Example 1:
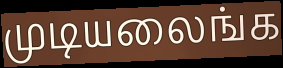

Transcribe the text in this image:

முடியலைங்க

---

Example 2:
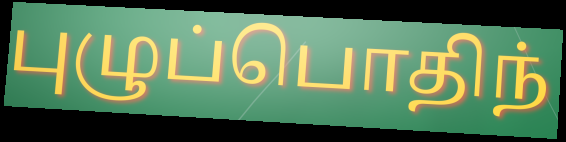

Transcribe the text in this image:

புழுப்பொதிந்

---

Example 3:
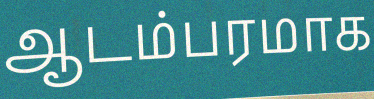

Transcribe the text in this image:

ஆடம்பரமாக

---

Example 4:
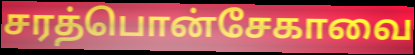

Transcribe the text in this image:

சரத்பொன்சேகாவை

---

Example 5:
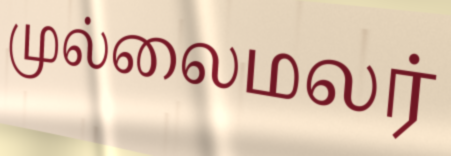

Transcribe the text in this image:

முல்லைமலர்